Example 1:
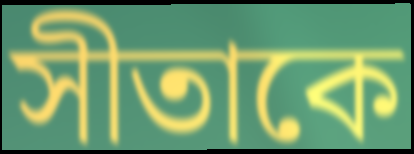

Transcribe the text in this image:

সীতাকে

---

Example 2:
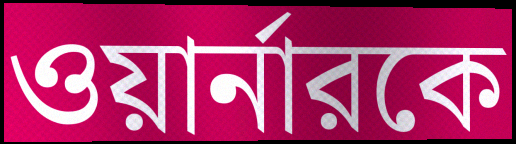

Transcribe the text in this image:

ওয়ার্নারকে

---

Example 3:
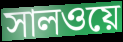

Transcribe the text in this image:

সালওয়ে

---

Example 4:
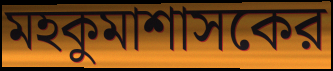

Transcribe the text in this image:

মহকুমাশাসকের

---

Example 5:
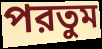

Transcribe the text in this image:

পরতুম